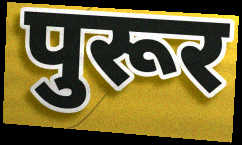
पुरूर